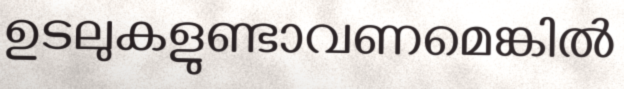
ഉടലുകളുണ്ടാവണമെങ്കിൽ